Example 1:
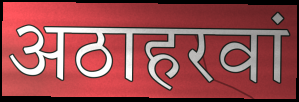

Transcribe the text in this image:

अठाहरवां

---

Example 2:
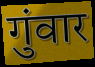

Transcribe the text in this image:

गुंवार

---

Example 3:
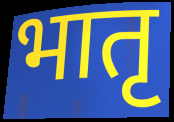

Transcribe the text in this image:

भातृ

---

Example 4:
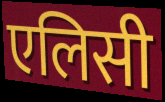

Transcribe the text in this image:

एलिसी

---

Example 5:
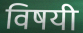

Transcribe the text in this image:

विषयी